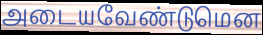
அடையவேண்டுமென